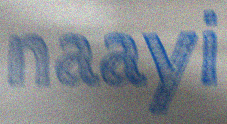
naayi